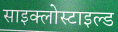
साइक्लोस्टाइल्ड